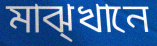
মাঝ্খানে